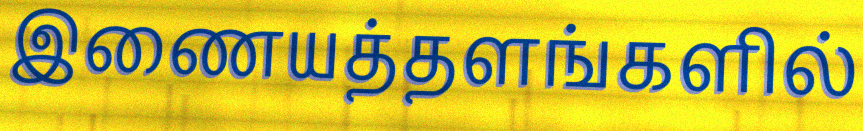
இணையத்தளங்களில்